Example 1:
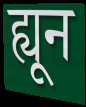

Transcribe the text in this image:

ह्यून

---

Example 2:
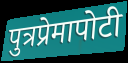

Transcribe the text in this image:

पुत्रप्रेमापोटी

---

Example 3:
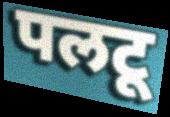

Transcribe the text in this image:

पलटू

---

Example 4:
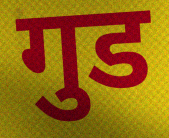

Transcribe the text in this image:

गुड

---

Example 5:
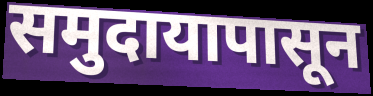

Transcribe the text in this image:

समुदायापासून